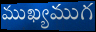
ముఖ్యముగ